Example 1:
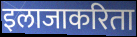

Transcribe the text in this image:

इलाजाकरिता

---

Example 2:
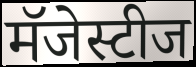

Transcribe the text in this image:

मॅजेस्टीज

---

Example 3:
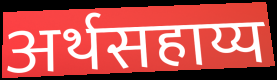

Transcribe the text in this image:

अर्थसहाय्य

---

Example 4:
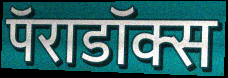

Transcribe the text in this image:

पॅराडॉक्स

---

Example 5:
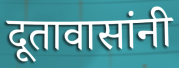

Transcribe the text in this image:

दूतावासांनी